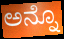
ಅನ್ನೊ